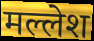
मल्लेश